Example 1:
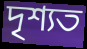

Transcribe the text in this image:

দৃশ্যত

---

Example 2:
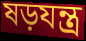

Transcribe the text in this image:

ষড়যন্ত্ৰ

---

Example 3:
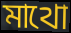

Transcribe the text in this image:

মাথো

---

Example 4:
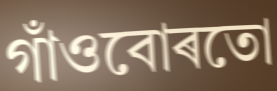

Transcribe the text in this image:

গাঁওবোৰতো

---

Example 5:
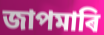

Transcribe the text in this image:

জাপমাৰি